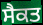
ਸੈਕਤ